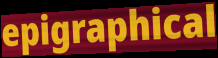
epigraphical